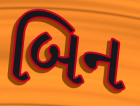
બિન